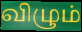
விழும்